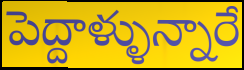
పెద్దాళ్ళున్నారే